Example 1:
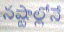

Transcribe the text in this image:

నష్టాల్లోనే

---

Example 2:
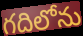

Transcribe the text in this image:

గదిలోను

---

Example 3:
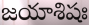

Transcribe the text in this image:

జయాశిషః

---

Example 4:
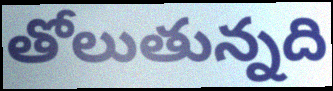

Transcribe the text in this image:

తోలుతున్నది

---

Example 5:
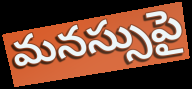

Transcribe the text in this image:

మనస్సుపై